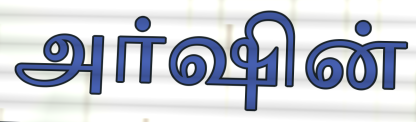
அர்ஷின்